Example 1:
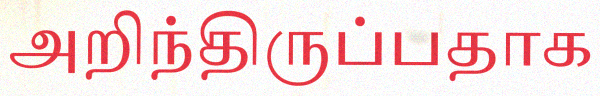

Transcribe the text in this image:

அறிந்திருப்பதாக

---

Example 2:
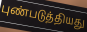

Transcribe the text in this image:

புண்படுத்தியது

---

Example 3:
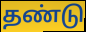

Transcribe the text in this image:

தண்டு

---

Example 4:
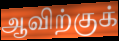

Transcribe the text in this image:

ஆவிற்குக்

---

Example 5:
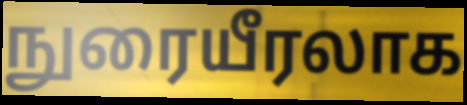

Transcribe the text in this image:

நுரையீரலாக